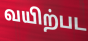
வயிற்பட